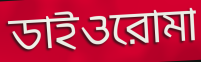
ডাইওরোমা